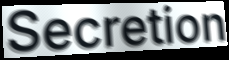
Secretion